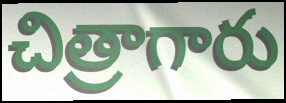
చిత్రాగారు